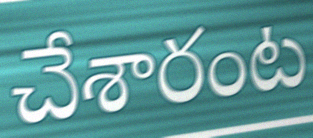
చేశారంట